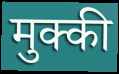
मुक्की